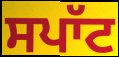
ਸਪਾੱਟ